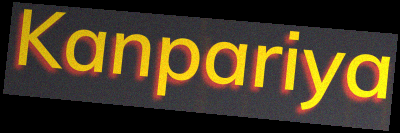
Kanpariya